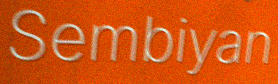
Sembiyan